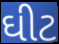
ઘીટ